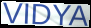
VIDYA